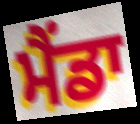
ਮੈਂਡਾ